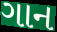
ગાન